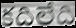
కదిలేది